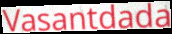
Vasantdada